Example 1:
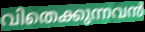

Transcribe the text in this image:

വിതെക്കുന്നവൻ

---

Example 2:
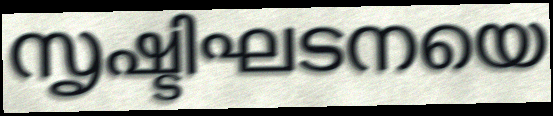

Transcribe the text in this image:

സൃഷ്ടിഘടനയെ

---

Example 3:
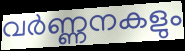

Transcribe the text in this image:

വർണ്ണനകളും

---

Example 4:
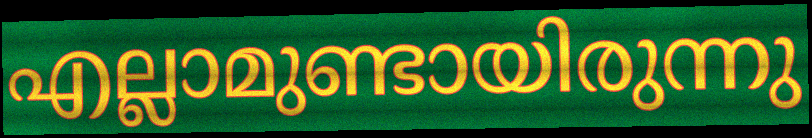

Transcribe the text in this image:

എല്ലാമുണ്ടായിരുന്നു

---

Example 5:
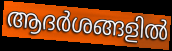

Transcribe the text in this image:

ആദർശങ്ങളിൽ